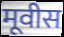
मूवीस